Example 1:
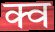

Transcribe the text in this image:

क्व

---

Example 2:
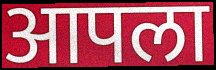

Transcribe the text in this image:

आपला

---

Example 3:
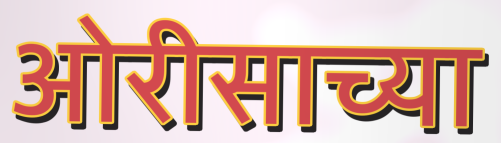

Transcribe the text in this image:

ओरीसाच्या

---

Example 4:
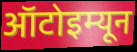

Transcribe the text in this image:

ऑटोइम्यून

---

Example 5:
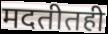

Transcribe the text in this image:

मदतीतही